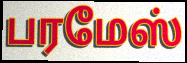
பரமேஸ்